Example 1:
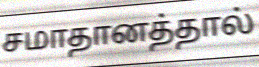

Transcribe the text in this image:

சமாதானத்தால்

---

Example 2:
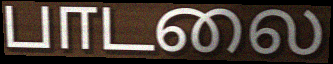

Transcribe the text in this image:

பாடலை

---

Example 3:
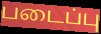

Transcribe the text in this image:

படைப்பு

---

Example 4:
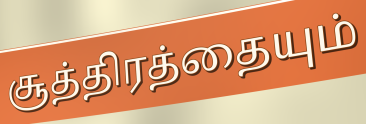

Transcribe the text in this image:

சூத்திரத்தையும்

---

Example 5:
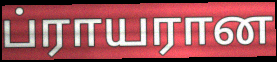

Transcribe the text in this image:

ப்ராயரான